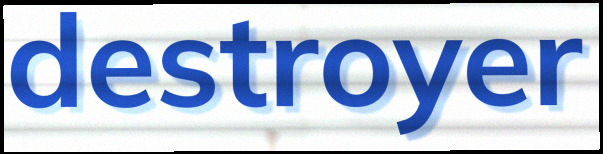
destroyer